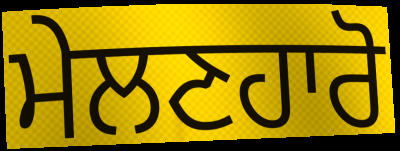
ਮੇਲਣਹਾਰੋ